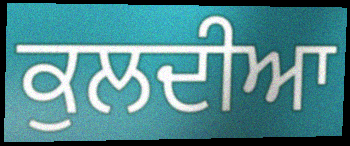
ਕੁਲਦੀਆ